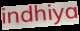
indhiya